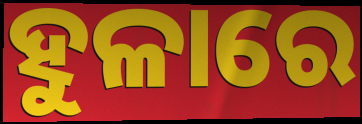
ହୁଳାରେ